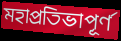
মহাপ্রতিভাপূর্ণ